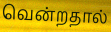
வென்றதால்